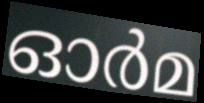
ഓർമ